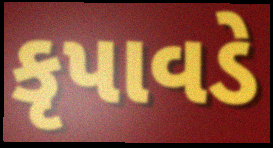
કૃપાવડે